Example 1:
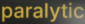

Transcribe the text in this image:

paralytic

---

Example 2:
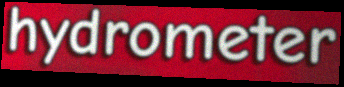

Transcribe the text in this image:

hydrometer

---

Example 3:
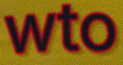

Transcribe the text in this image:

wto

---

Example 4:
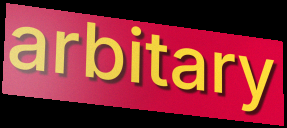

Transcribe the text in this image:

arbitary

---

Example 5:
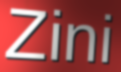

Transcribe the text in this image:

Zini